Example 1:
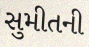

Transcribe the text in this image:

સુમીતની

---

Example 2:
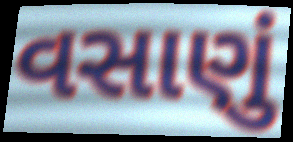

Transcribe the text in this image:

વસાણું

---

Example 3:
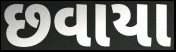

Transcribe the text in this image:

છવાયા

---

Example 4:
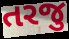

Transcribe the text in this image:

તરજુ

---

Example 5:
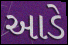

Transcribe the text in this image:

આડે